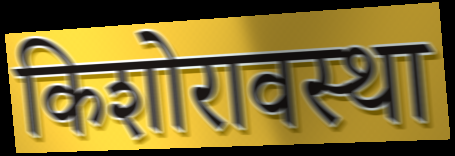
किशोरावस्था